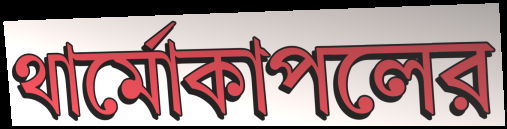
থার্মোকাপলের